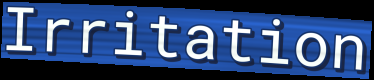
Irritation